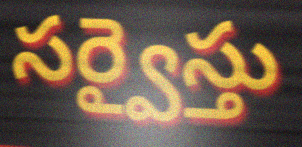
సర్వైస్తు